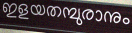
ഇളയതമ്പുരാനും